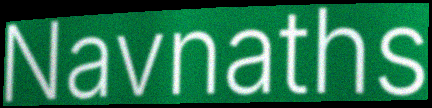
Navnaths